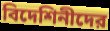
বিদেশিনীদের